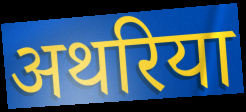
अथरिया